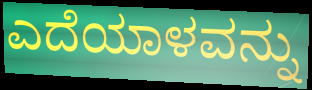
ಎದೆಯಾಳವನ್ನು